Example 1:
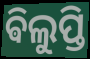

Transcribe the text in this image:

ଵିଲୁପ୍ତି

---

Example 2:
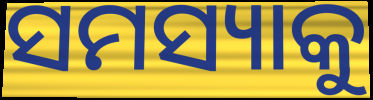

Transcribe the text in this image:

ସମସ୍ୟାକୁ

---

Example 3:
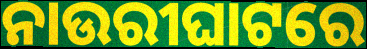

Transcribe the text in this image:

ନାଉରୀଘାଟରେ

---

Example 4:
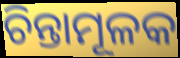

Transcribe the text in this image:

ଚିନ୍ତାମୂଳକ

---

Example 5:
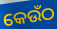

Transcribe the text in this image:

କେଉଁଠ